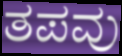
ತಪವು